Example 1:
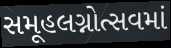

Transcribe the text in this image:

સમૂહલગ્નોત્સવમાં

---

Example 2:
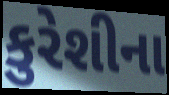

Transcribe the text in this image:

કુરેશીના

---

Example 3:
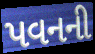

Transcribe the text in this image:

પવનની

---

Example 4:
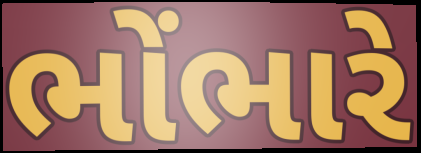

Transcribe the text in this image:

ભોંભારે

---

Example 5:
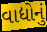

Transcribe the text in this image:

વાદ્યોનું